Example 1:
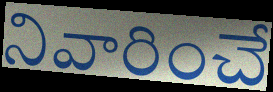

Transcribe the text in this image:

నివారించే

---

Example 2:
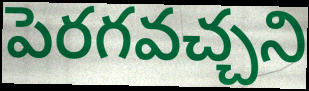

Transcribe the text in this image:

పెరగవచ్చని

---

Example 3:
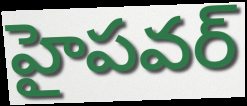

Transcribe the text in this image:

హైపవర్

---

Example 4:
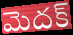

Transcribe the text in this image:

మెదక్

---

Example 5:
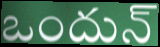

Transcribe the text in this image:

ఒందున్